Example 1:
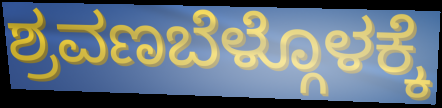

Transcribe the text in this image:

ಶ್ರವಣಬೆಳ್ಗೊಳಕ್ಕೆ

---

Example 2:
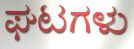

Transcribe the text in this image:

ಘಟಗಳು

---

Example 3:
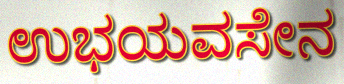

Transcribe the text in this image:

ಉಭಯವಸೇನ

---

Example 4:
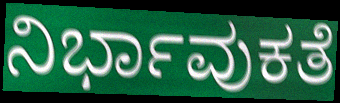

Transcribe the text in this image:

ನಿರ್ಭಾವುಕತೆ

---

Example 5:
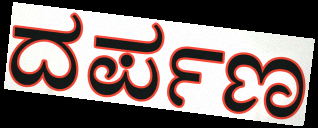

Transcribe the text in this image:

ದರ್ಪಣ